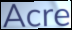
Acre